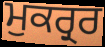
ਮੁਕਰ੍ਰਰ